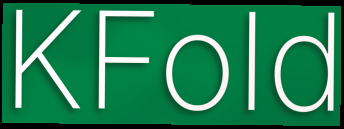
KFold